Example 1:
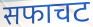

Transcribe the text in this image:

सफाचट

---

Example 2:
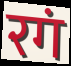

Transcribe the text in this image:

रगं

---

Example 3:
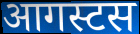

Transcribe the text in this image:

आगस्टस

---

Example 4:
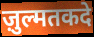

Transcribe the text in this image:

ज़ुल्मतकदे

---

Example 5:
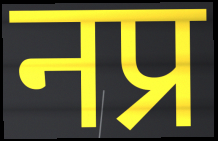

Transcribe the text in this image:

नप्र